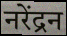
नरेंद्रन